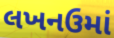
લખનઉમાં